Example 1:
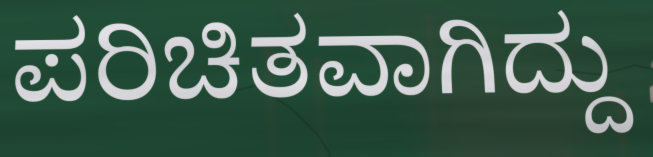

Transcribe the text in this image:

ಪರಿಚಿತವಾಗಿದ್ದು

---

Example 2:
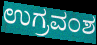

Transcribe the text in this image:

ಉಗ್ರವಂಶ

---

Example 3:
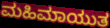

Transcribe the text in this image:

ಮಹಿಮಾಯುತ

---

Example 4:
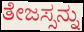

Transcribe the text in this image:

ತೇಜಸ್ಸನ್ನು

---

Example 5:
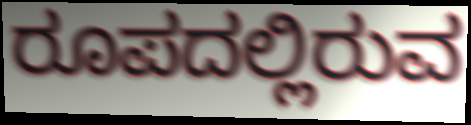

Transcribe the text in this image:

ರೂಪದಲ್ಲಿರುವ